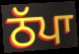
ਠੱਪਾ